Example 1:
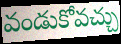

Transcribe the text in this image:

వండుకోవచ్చు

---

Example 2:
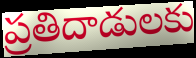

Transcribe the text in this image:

ప్రతిదాడులకు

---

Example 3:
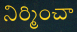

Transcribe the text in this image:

నిర్మించా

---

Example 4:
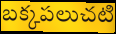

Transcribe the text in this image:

బక్కపలుచటి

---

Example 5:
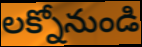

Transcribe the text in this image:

లక్నోనుండి